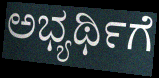
ಅಭ್ಯರ್ಥಿಗೆ